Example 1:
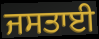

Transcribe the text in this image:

ਜਸਤਾਈ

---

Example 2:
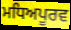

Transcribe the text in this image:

ਮਧਿਅਪੂਰਵ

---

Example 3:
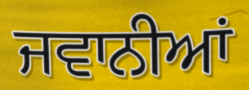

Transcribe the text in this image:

ਜਵਾਨੀਆਂ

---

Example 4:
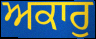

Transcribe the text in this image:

ਅਕਾਰੁ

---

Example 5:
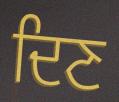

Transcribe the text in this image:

ਦਿਣ